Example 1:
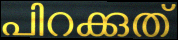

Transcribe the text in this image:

പിറക്കുത്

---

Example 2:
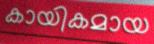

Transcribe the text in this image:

കായികമായ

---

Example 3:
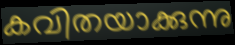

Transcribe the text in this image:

കവിതയാക്കുന്നു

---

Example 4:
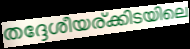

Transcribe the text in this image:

തദ്ദേശീയര്ക്കിടയിലെ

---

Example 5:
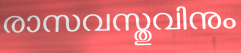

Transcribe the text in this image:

രാസവസ്തുവിനും